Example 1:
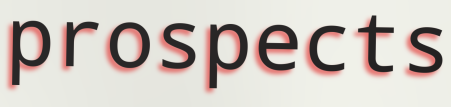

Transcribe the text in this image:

prospects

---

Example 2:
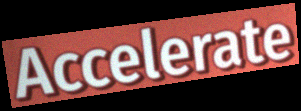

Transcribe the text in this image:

Accelerate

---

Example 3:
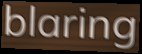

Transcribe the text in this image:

blaring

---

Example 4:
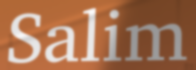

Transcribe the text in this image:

Salim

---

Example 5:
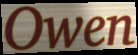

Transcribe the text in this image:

Owen